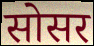
सोसर